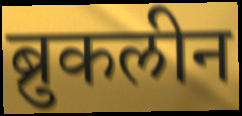
ब्रुकलीन